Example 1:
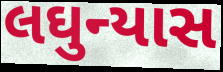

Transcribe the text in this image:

લઘુન્યાસ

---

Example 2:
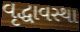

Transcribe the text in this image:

વૃદ્ધાવસ્થા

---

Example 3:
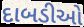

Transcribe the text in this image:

દાબડીઓ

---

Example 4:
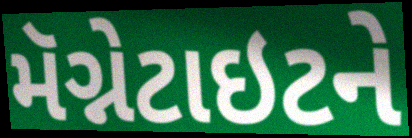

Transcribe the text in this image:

મૅગ્નેટાઇટને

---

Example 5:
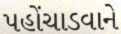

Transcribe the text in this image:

પહોંચાડવાને